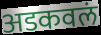
अडकवलं